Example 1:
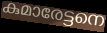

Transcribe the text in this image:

കുമാരേട്ടനെ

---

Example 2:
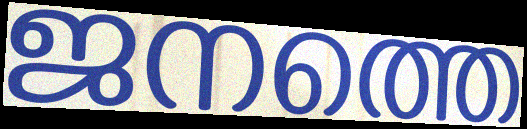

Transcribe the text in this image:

ജനത്തെ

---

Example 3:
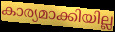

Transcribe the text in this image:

കാര്യമാക്കിയില്ല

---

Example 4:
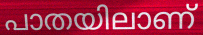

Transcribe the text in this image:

പാതയിലാണ്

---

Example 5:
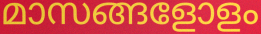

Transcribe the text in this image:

മാസങ്ങളോളം